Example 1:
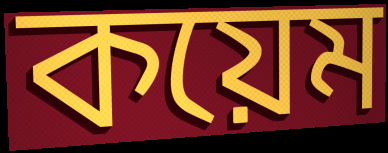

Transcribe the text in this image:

কয়েম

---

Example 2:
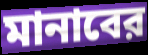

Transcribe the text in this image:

মানাবের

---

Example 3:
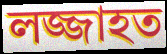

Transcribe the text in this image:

লজ্জাহত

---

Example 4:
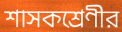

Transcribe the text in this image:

শাসকশ্রেণীর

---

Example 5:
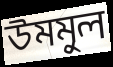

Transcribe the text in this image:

উমমুল